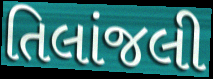
તિલાંજલી